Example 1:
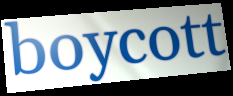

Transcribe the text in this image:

boycott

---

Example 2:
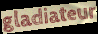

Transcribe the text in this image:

gladiateur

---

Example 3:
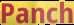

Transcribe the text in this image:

Panch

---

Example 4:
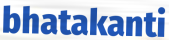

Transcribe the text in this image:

bhatakanti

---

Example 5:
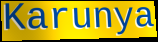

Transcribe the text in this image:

Karunya